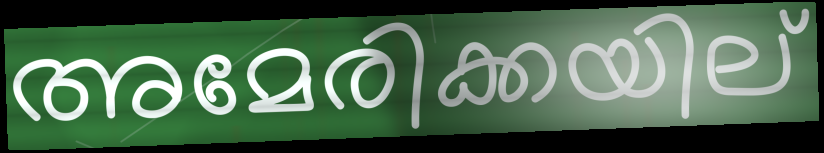
അമേരിക്കയില്